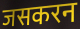
जसकरन